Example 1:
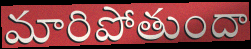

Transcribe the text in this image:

మారిపోతుందా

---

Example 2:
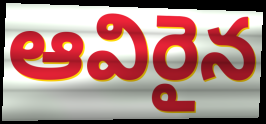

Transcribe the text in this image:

ఆవిరైన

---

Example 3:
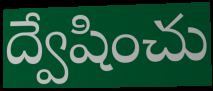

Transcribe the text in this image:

ద్వేషించు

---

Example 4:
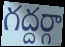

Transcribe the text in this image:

గద్దర్గా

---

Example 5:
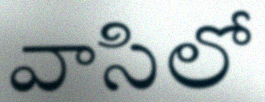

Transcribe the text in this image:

వాసిలో